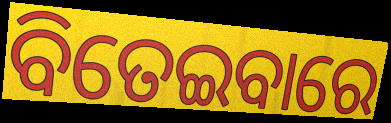
ବିତେଇବାରେ